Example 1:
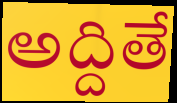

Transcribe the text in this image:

అద్దితే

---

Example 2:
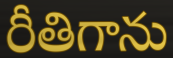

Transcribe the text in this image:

రీతిగాను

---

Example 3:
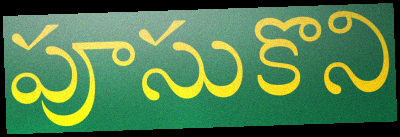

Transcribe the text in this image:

పూసుకొని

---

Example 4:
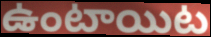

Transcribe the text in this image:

ఉంటాయిట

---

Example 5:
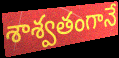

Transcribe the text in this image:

శాశ్వతంగానే